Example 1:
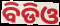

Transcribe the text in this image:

ବିଡିଓ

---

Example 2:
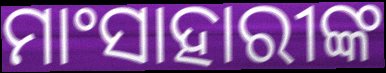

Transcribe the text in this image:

ମାଂସାହାରୀଙ୍କ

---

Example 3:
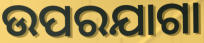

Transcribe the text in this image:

ଉପରଯାଗା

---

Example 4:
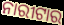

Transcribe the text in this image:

ନାରୀଟାର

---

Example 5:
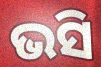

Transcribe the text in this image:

ଭସି